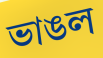
ভাঙল